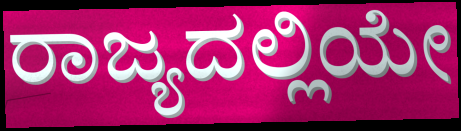
ರಾಜ್ಯದಲ್ಲಿಯೇ